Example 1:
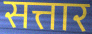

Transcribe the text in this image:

सत्तार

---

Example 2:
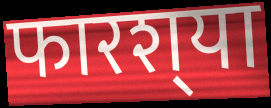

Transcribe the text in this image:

फारश्या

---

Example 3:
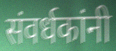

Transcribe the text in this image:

संवर्धकांनी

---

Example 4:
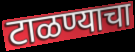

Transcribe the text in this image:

टाळण्याचा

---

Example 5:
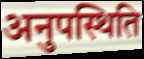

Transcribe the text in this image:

अनुपस्थिति